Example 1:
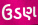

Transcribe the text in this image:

ઉડણ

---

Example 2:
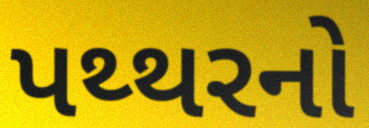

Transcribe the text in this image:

પથ્થરનો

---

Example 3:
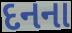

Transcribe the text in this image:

દનના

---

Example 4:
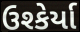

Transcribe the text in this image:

ઉશ્કેર્યા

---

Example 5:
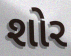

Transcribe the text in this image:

શોર